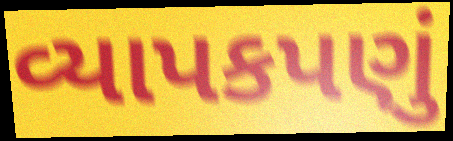
વ્યાપકપણું